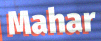
Mahar